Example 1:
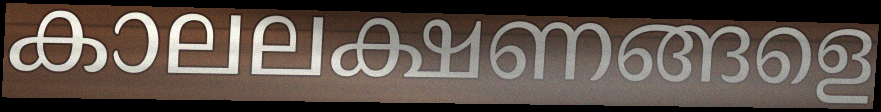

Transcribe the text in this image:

കാലലക്ഷണങ്ങളെ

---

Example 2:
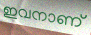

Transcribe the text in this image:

ഇവനാണ്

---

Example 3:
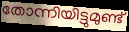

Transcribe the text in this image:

തോന്നിയിട്ടുമുണ്ട്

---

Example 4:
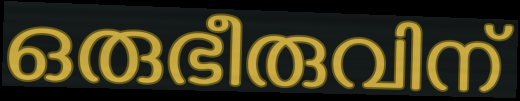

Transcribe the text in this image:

ഒരുഭീരുവിന്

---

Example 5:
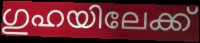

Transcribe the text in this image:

ഗുഹയിലേക്ക്